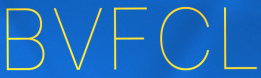
BVFCL